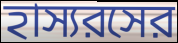
হাস্যরসের